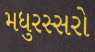
મધુરસ્સરો